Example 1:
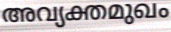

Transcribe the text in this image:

അവ്യക്തമുഖം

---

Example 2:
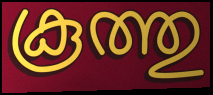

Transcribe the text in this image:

കൂത്തു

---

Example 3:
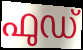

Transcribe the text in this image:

ഫുഡ്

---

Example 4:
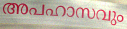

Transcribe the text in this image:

അപഹാസവും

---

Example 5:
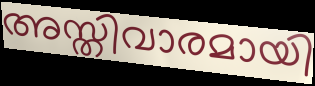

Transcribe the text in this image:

അസ്തിവാരമായി